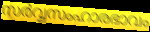
സർവ്വസംഹാരഭാവം